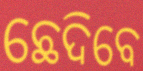
ଛେଦିବେ